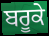
ਬਰੂਕੇ